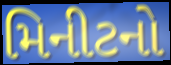
મિનીટનો